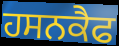
ਹਸਨਕੈਫ